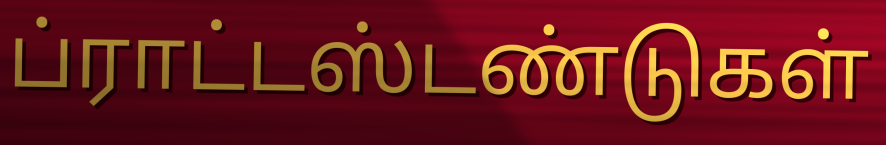
ப்ராட்டஸ்டண்டுகள்